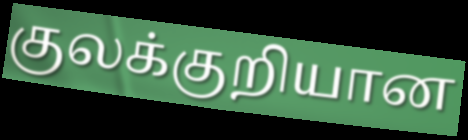
குலக்குறியான